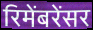
रिमेंबरेंसर